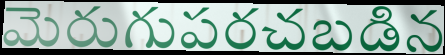
మెరుగుపరచబడిన